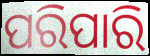
ପରିପାରି